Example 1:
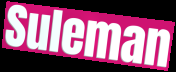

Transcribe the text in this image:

Suleman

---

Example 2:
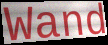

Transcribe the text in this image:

Wand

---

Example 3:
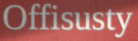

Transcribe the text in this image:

Offisusty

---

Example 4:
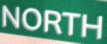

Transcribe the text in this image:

NORTH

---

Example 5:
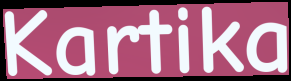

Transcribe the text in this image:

Kartika